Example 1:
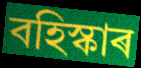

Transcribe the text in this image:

বহিস্কাৰ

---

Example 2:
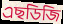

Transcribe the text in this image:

এছডিজি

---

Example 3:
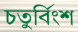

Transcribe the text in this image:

চতুৰ্বিংশ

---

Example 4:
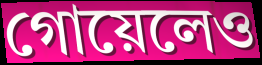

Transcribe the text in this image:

গোয়েলেও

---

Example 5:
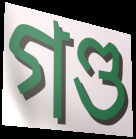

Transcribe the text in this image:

গণ্ড